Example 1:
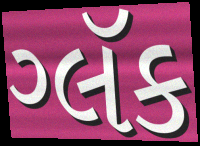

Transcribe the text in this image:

ગ્લૅક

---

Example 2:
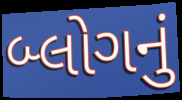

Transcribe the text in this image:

બ્લોગનું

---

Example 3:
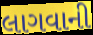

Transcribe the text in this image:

લાગવાની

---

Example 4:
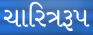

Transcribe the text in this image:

ચારિત્રરૂપ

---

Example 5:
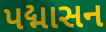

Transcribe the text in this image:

પદ્માસન